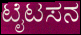
ಟೈಟಸನ